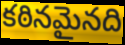
కఠినమైనది